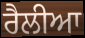
ਰੈਲੀਆ